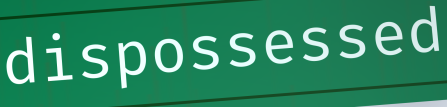
dispossessed